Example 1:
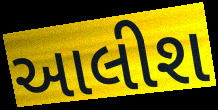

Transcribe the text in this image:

આલીશ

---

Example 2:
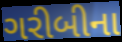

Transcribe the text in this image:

ગરીબીના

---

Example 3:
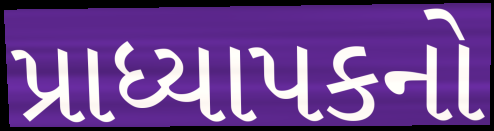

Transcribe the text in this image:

પ્રાધ્યાપકનો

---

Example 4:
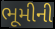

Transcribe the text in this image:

ભૂમીની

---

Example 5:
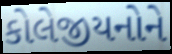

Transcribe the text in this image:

કોલેજીયનોને